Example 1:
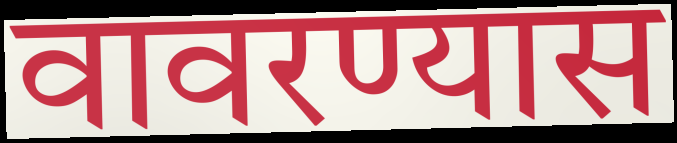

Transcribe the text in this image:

वावरण्यास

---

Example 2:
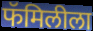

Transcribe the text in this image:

फॅमिलीला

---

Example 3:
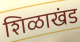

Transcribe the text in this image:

शिळाखंड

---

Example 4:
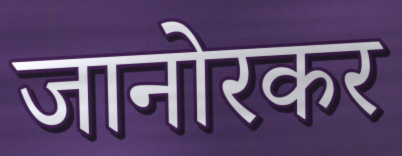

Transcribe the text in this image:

जानोरकर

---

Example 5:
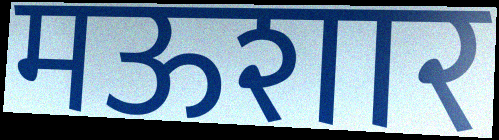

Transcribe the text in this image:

मऊशार